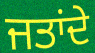
ਜਤਾਂਦੇ